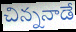
చిన్ననాడే